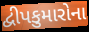
દ્વીપકુમારોના